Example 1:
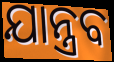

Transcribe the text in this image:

ଯାନ୍ତ୍ରବ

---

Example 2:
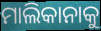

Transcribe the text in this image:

ମାଲିକାନାକୁ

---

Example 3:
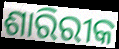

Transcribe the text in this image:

ଶାରିରୀକ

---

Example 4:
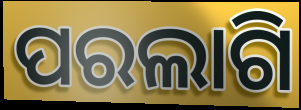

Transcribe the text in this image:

ପରଲାଗି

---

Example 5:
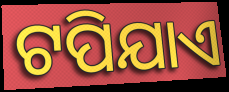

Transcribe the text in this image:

ଟପିଯାଏ